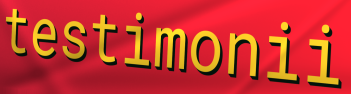
testimonii